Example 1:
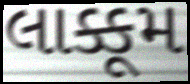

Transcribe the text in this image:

લાક્કૂમ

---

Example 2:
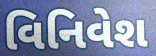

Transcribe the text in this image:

વિનિવેશ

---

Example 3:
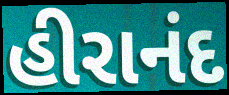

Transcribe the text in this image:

હીરાનંદ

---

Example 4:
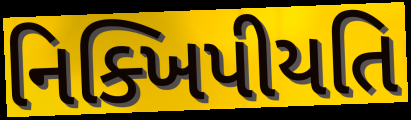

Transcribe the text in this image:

નિક્ખિપીયતિ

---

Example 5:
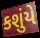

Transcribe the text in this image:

કશુંયે